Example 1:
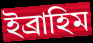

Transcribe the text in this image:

ইব্ৰাহিম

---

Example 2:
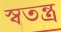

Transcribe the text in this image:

স্বতন্ত্ৰ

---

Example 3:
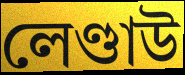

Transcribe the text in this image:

লেণ্ডাউ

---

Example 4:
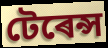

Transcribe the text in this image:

টেৰেন্স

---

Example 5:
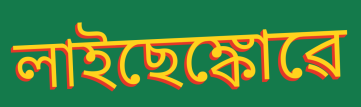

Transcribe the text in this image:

লাইছেঙ্কোৱে